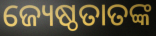
ଜ୍ୟେଷ୍ଠତାତଙ୍କ